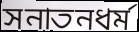
সনাতনধর্ম